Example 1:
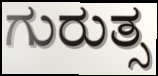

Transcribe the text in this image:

ಗುರುತ್ಸ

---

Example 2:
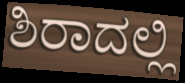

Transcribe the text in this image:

ಶಿರಾದಲ್ಲಿ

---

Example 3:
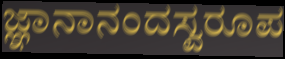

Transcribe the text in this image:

ಜ್ಞಾನಾನಂದಸ್ವರೂಪ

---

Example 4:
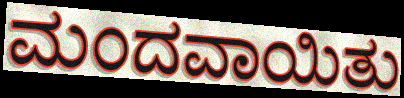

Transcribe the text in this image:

ಮಂದವಾಯಿತು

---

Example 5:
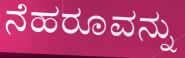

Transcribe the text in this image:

ನೆಹರೂವನ್ನು